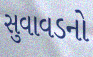
સુવાવડનો